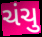
ચંચુ